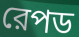
রেপড